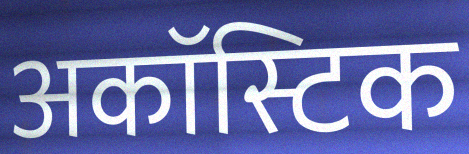
अकॉस्टिक